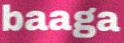
baaga